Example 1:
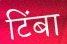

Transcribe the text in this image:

टिंबा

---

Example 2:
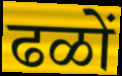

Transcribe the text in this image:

ढळों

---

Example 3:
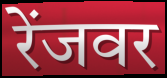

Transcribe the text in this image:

रेंजवर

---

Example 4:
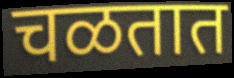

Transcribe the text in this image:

चळतात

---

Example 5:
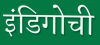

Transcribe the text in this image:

इंडिगोची